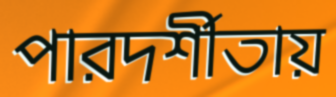
পারদর্শীতায়